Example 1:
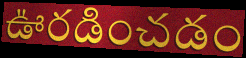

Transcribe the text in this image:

ఊరడించడం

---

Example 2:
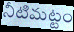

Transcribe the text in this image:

నీటిమట్టం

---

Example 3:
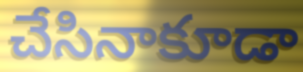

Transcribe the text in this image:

చేసినాకూడా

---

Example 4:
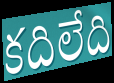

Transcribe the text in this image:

కదిలేది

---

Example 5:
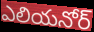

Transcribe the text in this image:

ఎలియనోర్